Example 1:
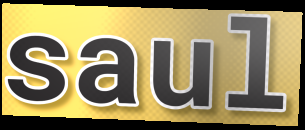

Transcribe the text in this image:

saul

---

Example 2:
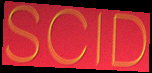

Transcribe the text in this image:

SCID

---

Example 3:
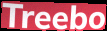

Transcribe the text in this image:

Treebo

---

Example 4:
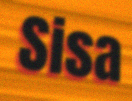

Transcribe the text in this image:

Sisa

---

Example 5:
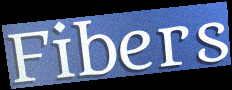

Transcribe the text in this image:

Fibers